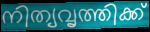
നിത്യവൃത്തിക്ക്